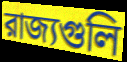
রাজ্যগুলি